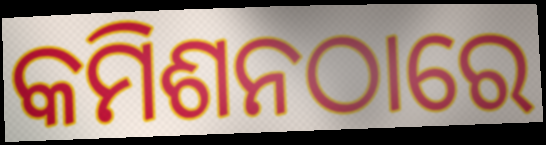
କମିଶନଠାରେ